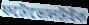
ফটোভোলটাইক